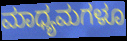
ಮಾಧ್ಯಮಗಳೂ